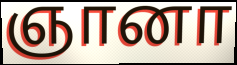
ஞானா